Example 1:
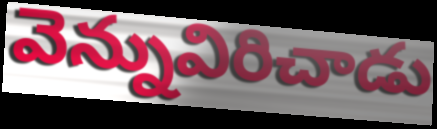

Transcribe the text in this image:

వెన్నువిరిచాడు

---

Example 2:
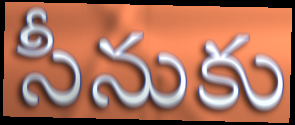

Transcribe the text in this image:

సీనుకు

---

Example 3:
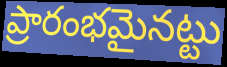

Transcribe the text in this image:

ప్రారంభమైనట్టు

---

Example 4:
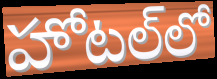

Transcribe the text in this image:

హోటల్‌లో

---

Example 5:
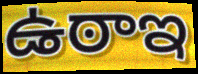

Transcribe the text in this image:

ఉఠాఇ